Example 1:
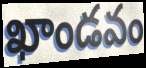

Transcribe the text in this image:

ఖాండవం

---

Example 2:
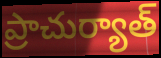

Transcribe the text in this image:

ప్రాచుర్యాత్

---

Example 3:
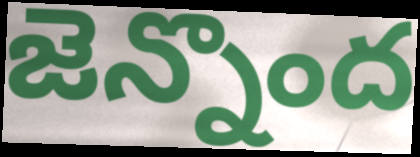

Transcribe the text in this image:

జెన్నొంద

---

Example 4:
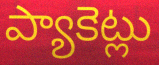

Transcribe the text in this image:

ప్యాకెట్లు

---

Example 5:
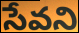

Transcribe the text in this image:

సేవని